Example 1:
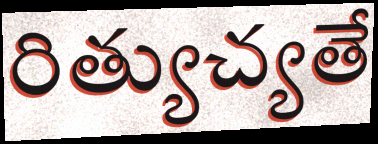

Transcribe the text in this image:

రిత్యుచ్యతే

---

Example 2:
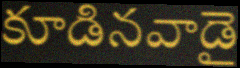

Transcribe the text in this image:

కూడినవాడై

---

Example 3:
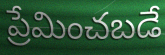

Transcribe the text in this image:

ప్రేమించబడే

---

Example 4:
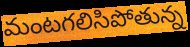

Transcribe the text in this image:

మంటగలిసిపోతున్న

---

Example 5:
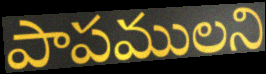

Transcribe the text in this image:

పాపములని